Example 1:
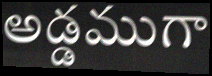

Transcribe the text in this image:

అడ్డముగా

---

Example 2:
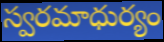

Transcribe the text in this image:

స్వరమాధుర్యం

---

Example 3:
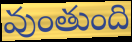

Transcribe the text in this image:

వుంతుంది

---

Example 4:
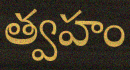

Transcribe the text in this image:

త్వహం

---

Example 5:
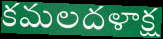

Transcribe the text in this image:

కమలదళాక్ష